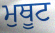
ਮੁਥੂਟ